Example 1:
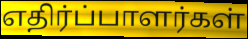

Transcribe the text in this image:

எதிர்ப்பாளர்கள்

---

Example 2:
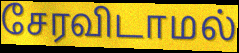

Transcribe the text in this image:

சேரவிடாமல்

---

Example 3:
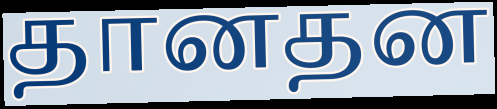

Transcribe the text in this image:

தானதன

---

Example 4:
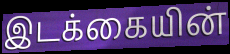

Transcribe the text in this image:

இடக்கையின்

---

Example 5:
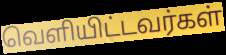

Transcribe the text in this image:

வெளியிட்டவர்கள்